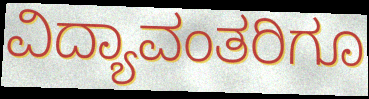
ವಿದ್ಯಾವಂತರಿಗೂ